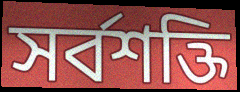
সর্বশক্তি